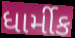
ધાર્મીક